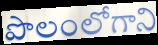
పొలంలోగాని